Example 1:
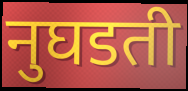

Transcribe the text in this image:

नुघडती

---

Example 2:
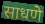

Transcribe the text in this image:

साधणे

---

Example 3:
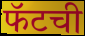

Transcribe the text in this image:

फॅटची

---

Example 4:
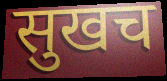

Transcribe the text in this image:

सुखच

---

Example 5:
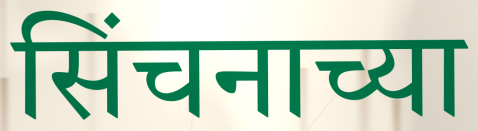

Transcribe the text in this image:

सिंचनाच्या